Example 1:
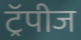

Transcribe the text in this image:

ट्रॅपीज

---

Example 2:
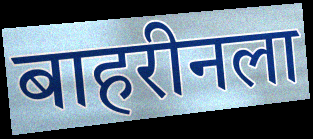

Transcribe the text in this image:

बाहरीनला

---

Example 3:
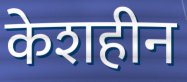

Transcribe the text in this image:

केशहीन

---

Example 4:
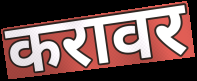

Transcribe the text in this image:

करावर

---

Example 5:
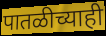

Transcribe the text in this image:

पातळीच्याही